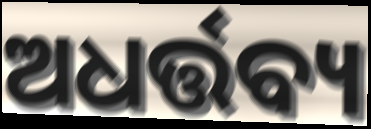
ଅଧର୍ତ୍ତବ୍ୟ